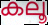
കലൂ